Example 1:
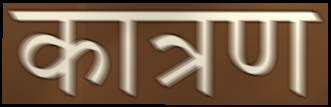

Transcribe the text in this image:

कात्रण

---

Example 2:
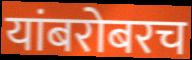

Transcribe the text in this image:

यांबरोबरच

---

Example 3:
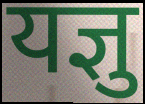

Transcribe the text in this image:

यज्ञु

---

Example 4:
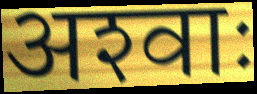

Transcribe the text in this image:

अश्वाः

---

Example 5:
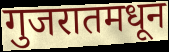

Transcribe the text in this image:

गुजरातमधून